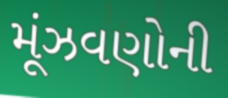
મૂંઝવણોની